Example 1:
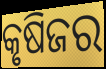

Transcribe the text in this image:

କୃଷିଜର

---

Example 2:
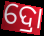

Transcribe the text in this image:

ଦ୍ରୋ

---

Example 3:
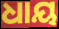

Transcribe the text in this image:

ଧାୟ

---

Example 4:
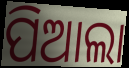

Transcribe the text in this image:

ପିଆଲା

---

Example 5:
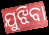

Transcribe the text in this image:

ଯୁଝିବା